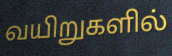
வயிறுகளில்